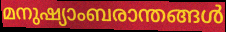
മനുഷ്യാംബരാന്തങ്ങൾ